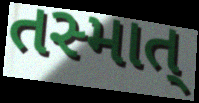
તસ્માત્